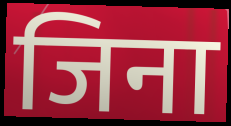
जिना